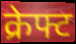
क्रेफ्ट